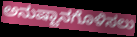
ಅನುಷ್ಟಾನಗೊಳಿಸಲು